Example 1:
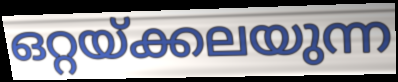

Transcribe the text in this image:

ഒറ്റയ്ക്കലയുന്ന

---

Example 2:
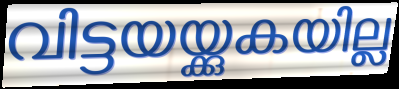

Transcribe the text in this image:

വിട്ടയയ്ക്കുകയില്ല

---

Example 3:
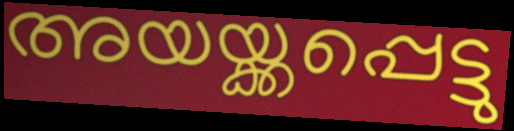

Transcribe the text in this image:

അയയ്ക്കപ്പെട്ടു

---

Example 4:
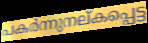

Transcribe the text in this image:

പകർന്നുനല്കപ്പെട്ട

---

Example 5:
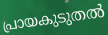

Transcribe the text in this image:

പ്രായകുടുതൽ